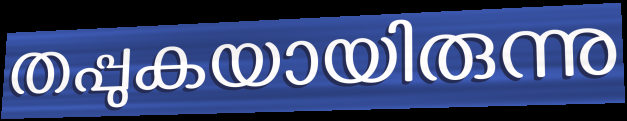
തപ്പുകയായിരുന്നു